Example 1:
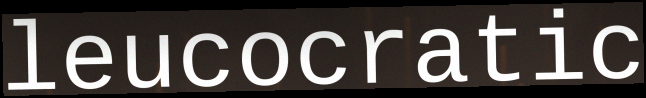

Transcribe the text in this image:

leucocratic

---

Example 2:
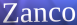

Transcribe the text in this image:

Zanco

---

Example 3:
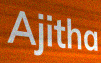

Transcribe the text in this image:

Ajitha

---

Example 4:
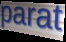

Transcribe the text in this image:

parat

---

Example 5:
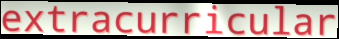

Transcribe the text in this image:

extracurricular